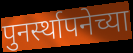
पुनर्स्थापनेच्या